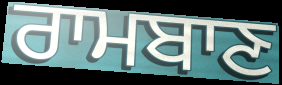
ਰਾਮਬਾਣ